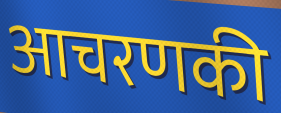
आचरणकी